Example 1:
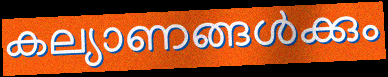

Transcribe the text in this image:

കല്യാണങ്ങൾക്കും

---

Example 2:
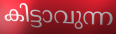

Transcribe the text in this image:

കിട്ടാവുന്ന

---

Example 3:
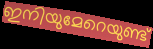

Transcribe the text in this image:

ഇനിയുമേറെയുണ്ട്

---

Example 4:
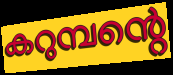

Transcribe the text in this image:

കറുമ്പന്റെ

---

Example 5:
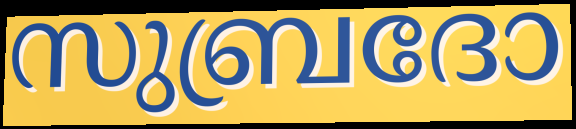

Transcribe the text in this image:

സുബ്രദോ